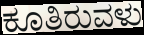
ಕೂತಿರುವಳು